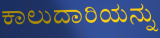
ಕಾಲುದಾರಿಯನ್ನು